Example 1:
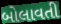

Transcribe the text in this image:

બોલાવતી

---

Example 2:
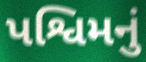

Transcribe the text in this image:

પશ્વિમનું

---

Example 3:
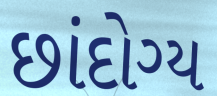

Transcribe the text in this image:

છાંદોગ્ય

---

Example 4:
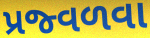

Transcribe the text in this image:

પ્રજ્વળવા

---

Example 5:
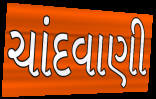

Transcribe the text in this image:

ચાંદવાણી